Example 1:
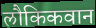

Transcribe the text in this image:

लौकिकवान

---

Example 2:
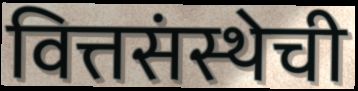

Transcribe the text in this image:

वित्तसंस्थेची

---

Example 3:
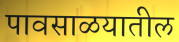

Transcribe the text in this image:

पावसाळयातील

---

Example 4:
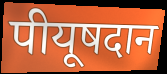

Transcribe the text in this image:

पीयूषदान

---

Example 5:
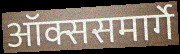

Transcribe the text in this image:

ऑक्ससमार्गे